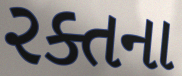
રક્તના